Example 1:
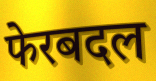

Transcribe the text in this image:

फेरबदल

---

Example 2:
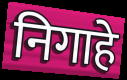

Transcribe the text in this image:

निगाहे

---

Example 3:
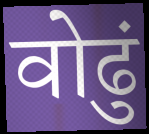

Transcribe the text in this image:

वोढुं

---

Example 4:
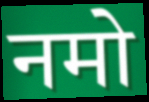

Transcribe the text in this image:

नमो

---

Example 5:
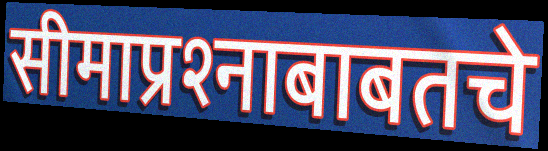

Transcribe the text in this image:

सीमाप्रश्नाबाबतचे